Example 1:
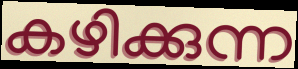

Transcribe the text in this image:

കഴിക്കുന്ന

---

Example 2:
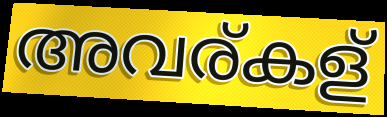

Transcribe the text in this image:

അവര്കള്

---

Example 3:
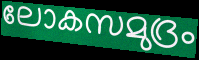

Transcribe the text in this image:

ലോകസമുദ്രം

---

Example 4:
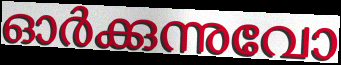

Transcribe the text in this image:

ഓർക്കുന്നുവോ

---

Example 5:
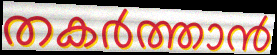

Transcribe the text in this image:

തകർത്താൻ